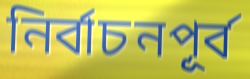
নির্বাচনপূর্ব